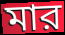
মার